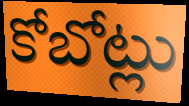
కోబోట్లు